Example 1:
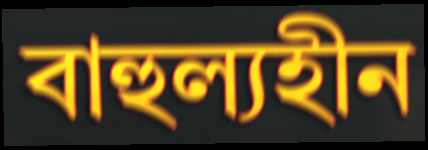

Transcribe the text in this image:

বাহুল্যহীন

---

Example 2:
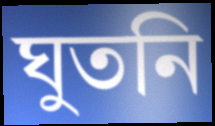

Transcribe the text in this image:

ঘুতনি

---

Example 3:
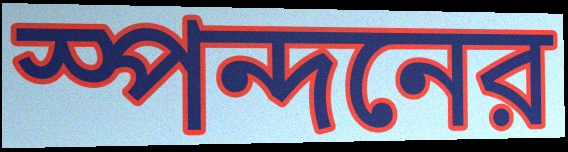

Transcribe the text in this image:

স্পন্দনের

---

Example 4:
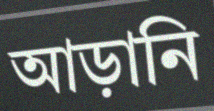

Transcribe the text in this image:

আড়ানি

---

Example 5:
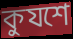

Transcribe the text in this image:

কুযশে